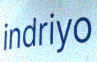
indriyo